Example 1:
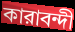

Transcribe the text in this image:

কারাবন্দী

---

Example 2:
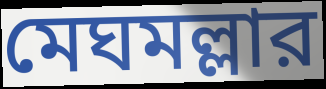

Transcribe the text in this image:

মেঘমল্লার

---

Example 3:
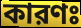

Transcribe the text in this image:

কারণঃ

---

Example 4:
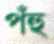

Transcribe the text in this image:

পঁহু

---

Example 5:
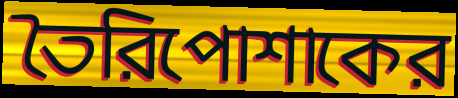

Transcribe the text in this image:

তৈরিপোশাকের